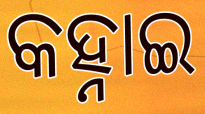
କହ୍ନାଇ